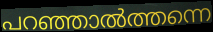
പറഞ്ഞാൽത്തന്നെ